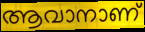
ആവാനാണ്